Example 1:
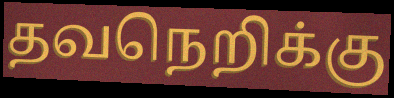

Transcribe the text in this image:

தவநெறிக்கு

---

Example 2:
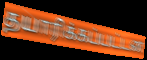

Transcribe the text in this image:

தயாரிக்கப்பட்டன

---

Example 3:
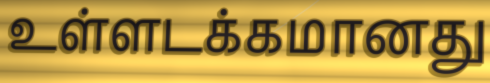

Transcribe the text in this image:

உள்ளடக்கமானது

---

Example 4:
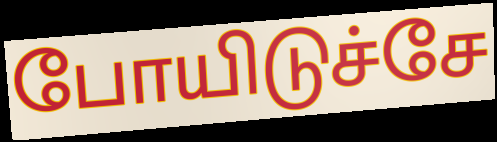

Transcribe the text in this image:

போயிடுச்சே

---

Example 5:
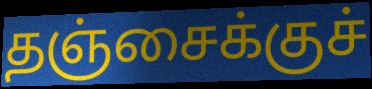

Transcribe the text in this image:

தஞ்சைக்குச்